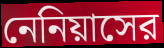
নেনিয়াসের